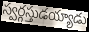
స్వర్గస్తుడయ్యాడు